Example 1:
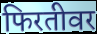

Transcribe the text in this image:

फिरतीवर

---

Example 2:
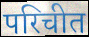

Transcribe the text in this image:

परिचीत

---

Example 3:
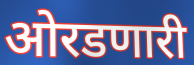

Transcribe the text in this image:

ओरडणारी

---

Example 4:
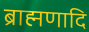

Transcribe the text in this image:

ब्राह्मणादि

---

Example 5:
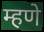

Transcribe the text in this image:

म्हणे